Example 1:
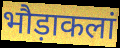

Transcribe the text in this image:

भौड़ाकलां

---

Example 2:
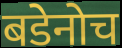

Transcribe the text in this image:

बडेनोच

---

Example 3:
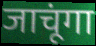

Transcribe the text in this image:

जाचूंगा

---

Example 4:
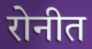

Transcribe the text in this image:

रोनीत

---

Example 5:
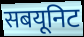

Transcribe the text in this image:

सबयूनिट